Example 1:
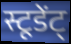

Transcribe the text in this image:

स्टूडेंट्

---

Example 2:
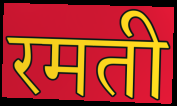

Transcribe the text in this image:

रमती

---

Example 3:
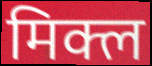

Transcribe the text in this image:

मिक्ल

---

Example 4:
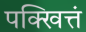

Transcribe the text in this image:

पक्खित्तं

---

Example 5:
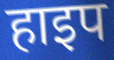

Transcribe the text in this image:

हाइप